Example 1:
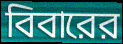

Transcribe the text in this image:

বিবারের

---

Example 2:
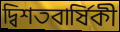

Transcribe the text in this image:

দ্বিশতবার্ষিকী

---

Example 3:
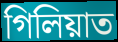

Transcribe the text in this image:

গিলিয়াত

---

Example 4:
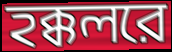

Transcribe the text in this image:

হক্কলরে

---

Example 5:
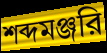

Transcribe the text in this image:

শব্দমঞ্জরি